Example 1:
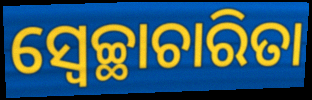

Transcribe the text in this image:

ସ୍ୱେଚ୍ଛାଚାରିତା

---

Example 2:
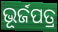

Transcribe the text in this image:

ଭୂର୍ଜପତ୍ର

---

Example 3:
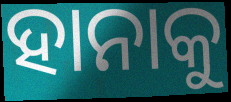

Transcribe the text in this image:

ହାନାକୁ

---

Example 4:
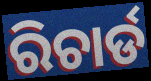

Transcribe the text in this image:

ରିଚାର୍ଡ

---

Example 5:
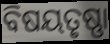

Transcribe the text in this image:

ବିଷୟତୃଷ୍ଣା